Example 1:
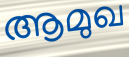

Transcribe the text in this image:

ആമുഖ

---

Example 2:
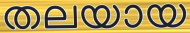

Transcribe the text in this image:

തലയായ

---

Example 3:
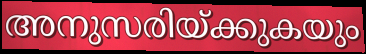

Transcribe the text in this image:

അനുസരിയ്ക്കുകയും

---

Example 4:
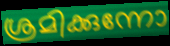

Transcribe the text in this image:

ശ്രമിക്കുന്നോ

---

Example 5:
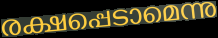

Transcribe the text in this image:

രക്ഷപ്പെടാമെന്നു